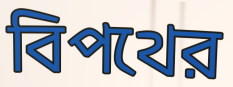
বিপথের